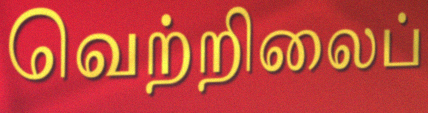
வெற்றிலைப்